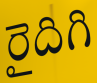
రైదిగి